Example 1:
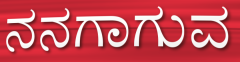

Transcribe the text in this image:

ನನಗಾಗುವ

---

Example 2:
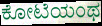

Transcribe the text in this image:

ಕೋಟೆಯಂಥ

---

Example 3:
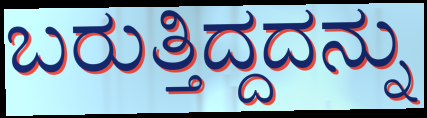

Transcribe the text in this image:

ಬರುತ್ತಿದ್ದದನ್ನು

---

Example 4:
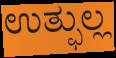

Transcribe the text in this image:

ಉತ್ಫುಲ್ಲ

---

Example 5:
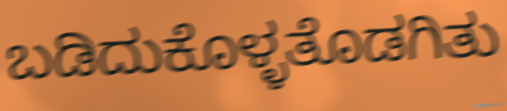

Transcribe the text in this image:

ಬಡಿದುಕೊಳ್ಳತೊಡಗಿತು